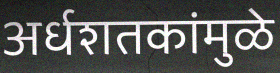
अर्धशतकांमुळे